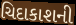
ચિદાકાશની